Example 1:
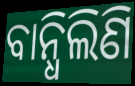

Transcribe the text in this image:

ବାନ୍ଧିଲିଣି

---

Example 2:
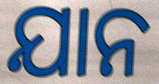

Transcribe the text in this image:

ଯାନ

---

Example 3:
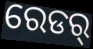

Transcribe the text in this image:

ରେଡର୍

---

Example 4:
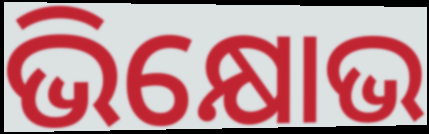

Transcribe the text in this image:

ଭିକ୍ଷୋଭ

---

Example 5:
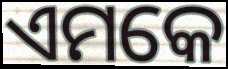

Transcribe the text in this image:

ଏମକେ